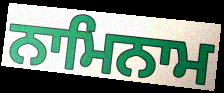
ਨਾਮਿਨਾਮ